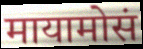
मायामोसं